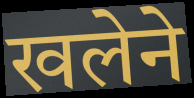
खलेने